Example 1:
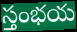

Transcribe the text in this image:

స్తంభయ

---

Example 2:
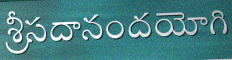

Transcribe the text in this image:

శ్రీసదానందయోగి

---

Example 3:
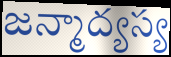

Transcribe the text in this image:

జన్మాద్యస్య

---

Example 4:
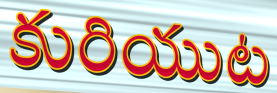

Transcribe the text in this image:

కురియుట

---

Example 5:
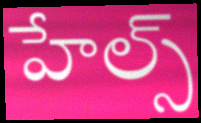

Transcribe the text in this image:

హేల్స్